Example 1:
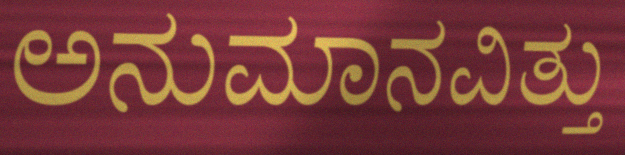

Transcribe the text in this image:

ಅನುಮಾನವಿತ್ತು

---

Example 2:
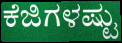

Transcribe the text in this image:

ಕೆಜಿಗಳಷ್ಟು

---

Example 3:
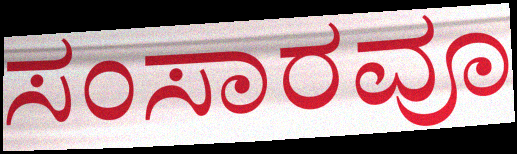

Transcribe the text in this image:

ಸಂಸಾರವೂ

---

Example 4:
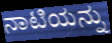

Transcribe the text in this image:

ನಾಟಿಯನ್ನು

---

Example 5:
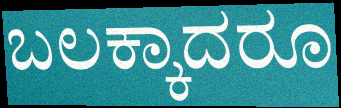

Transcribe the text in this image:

ಬಲಕ್ಕಾದರೂ